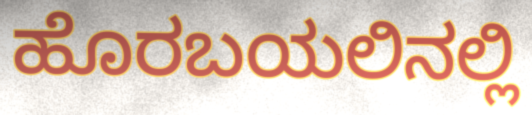
ಹೊರಬಯಲಿನಲ್ಲಿ